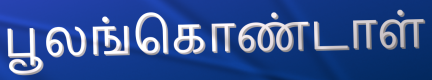
பூலங்கொண்டாள்